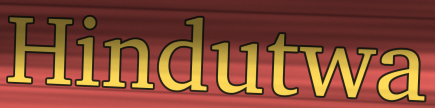
Hindutwa